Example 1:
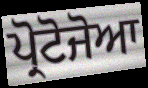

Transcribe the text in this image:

ਪ੍ਰੋਟੋਜੋਆ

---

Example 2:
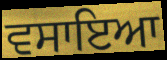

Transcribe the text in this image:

ਵਸਾਇਆ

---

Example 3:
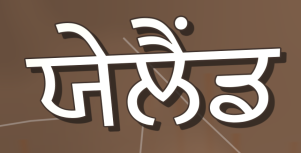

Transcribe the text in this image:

ਯੇਲੈਂਡ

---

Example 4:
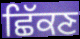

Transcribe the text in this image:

ਛਿੱਕਣ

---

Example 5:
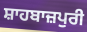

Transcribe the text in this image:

ਸ਼ਾਹਬਾਜ਼ਪੁਰੀ